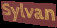
Sylvan